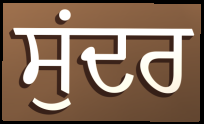
ਸੁਂਦਰ